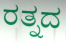
ರತ್ನದ